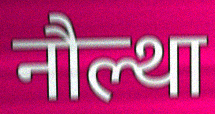
नौल्था